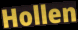
Hollen